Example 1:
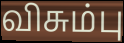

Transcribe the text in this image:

விசும்பு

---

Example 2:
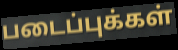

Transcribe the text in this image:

படைப்புக்கள்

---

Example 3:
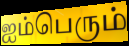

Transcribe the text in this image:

ஐம்பெரும்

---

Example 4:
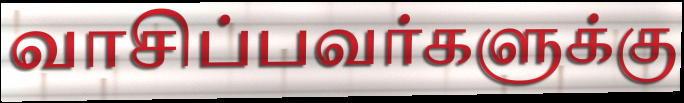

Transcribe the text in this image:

வாசிப்பவர்களுக்கு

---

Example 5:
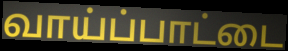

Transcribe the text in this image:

வாய்ப்பாட்டை